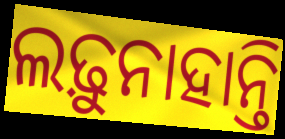
ଲଢ଼ୁନାହାନ୍ତି